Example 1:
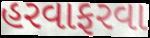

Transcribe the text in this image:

હરવાફરવા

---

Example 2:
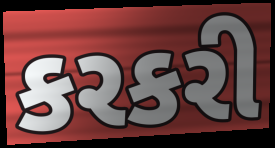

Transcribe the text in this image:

કરકરી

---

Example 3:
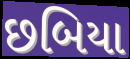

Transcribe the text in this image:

છબિયા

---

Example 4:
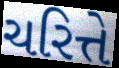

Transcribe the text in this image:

ચરિત્તે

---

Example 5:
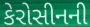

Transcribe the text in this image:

કેરોસીનની